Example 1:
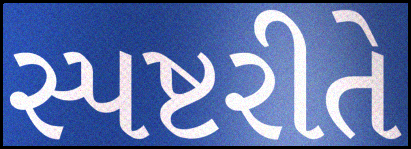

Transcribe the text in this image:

સ્પષ્ટરીતે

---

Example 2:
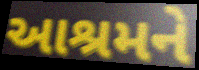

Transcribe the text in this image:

આશ્રમને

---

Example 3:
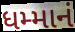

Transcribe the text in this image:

ધમ્માનં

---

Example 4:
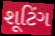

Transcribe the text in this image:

શૂટિંગ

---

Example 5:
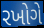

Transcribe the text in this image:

રખોગે